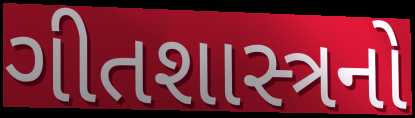
ગીતશાસ્ત્રનો